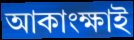
আকাংক্ষাই